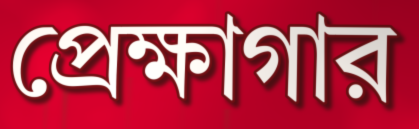
প্রেক্ষাগার